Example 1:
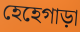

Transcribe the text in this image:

হেহেগাড়া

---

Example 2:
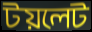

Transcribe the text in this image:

টয়লেট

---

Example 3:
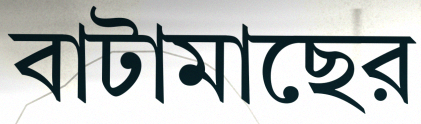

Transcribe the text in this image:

বাটামাছের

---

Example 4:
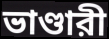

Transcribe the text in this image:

ভাণ্ডারী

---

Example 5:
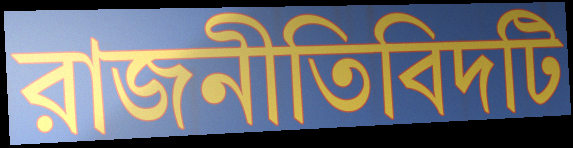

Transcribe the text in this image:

রাজনীতিবিদটি